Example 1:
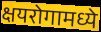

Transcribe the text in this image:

क्षयरोगामध्ये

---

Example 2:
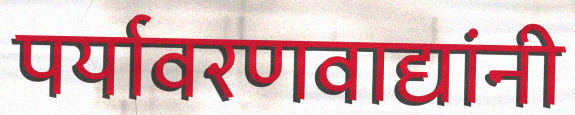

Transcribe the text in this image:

पर्यावरणवाद्यांनी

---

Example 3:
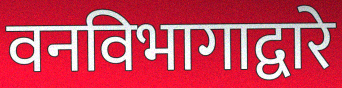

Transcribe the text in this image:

वनविभागाद्वारे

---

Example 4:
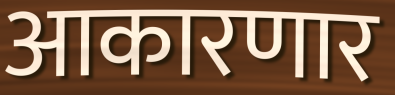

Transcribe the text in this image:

आकारणार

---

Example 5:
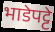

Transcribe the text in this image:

भाडेपट्टे